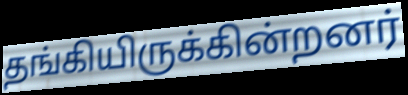
தங்கியிருக்கின்றனர்